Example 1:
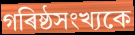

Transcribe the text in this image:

গৰিষ্ঠসংখ্যকে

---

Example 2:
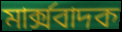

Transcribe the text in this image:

মাৰ্ক্সবাদক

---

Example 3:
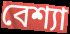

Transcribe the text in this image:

বেশ্যা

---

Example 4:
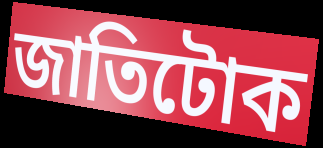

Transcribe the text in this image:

জাতিটোক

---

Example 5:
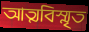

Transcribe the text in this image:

আত্মবিস্মৃত